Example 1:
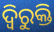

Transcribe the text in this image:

ଦ୍ୱିରୁକ୍ତି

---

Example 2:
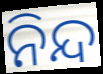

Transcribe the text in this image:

ନିନ୍ଦ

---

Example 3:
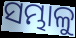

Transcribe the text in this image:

ସମ୍ଭାଳୁ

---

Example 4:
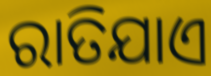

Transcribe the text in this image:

ରାତିଯାଏ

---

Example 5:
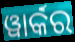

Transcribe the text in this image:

ୱାର୍କର